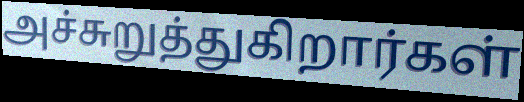
அச்சுறுத்துகிறார்கள்